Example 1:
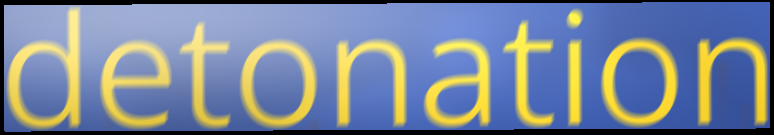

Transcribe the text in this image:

detonation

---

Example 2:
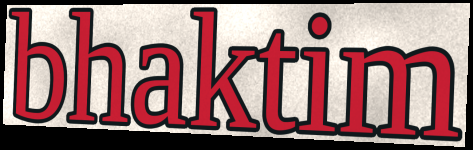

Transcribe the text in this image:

bhaktim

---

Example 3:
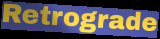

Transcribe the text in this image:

Retrograde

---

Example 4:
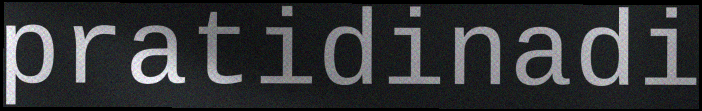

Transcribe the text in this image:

pratidinadi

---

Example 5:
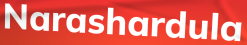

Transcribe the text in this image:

Narashardula